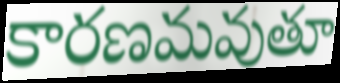
కారణమవుతూ